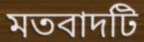
মতবাদটি